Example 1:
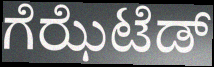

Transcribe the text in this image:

ಗೆಝೆಟೆಡ್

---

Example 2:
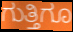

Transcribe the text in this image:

ಗುತ್ತಿಗೂ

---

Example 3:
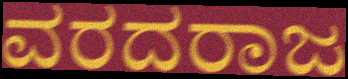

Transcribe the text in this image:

ವರದರಾಜ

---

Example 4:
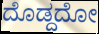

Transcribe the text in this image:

ದೊಡ್ದದೋ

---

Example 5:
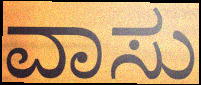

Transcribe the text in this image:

ವಾಸು